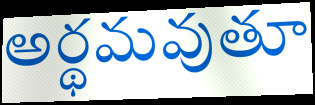
అర్థమవుతూ